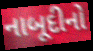
નાબૂદીનો